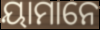
ୟାମାନେ